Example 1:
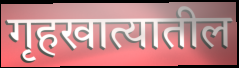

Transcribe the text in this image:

गृहखात्यातील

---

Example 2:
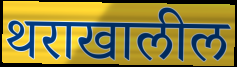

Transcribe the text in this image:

थराखालील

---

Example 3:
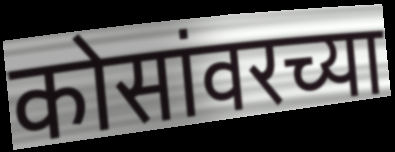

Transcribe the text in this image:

कोसांवरच्या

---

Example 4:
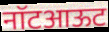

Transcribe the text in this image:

नॉटआऊट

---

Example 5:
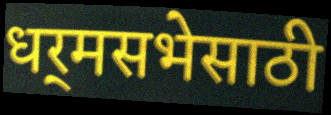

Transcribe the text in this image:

धर्मसभेसाठी